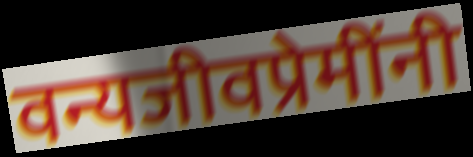
वन्यजीवप्रेमींनी